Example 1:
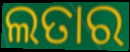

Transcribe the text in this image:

ଲତାର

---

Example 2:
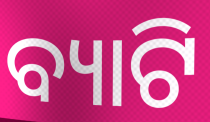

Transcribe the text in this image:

ବ୍ୟାଟି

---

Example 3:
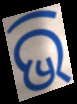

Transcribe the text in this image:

ଭି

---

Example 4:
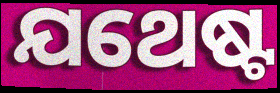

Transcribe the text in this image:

ଯଥେଷ୍ଟ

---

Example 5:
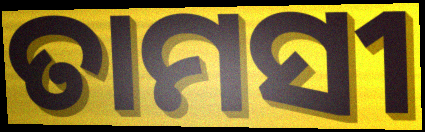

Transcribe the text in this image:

ତାମସୀ